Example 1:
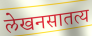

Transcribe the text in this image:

लेखनसातत्य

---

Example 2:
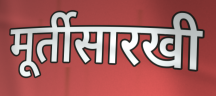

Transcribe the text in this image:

मूर्तीसारखी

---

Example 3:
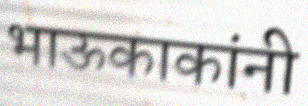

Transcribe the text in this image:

भाऊकाकांनी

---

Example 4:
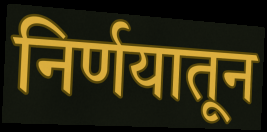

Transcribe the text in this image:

निर्णयातून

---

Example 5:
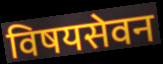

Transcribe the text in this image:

विषयसेवन